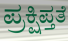
ಪ್ರಕ್ಷಿಪ್ತತೆ